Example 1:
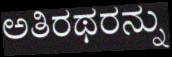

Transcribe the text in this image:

ಅತಿರಥರನ್ನು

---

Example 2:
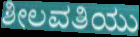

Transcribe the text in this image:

ಶೀಲವತಿಯು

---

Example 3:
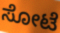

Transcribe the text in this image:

ಸೋಟೆ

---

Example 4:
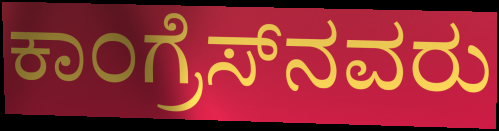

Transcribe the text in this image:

ಕಾಂಗ್ರೆಸ್‌ನವರು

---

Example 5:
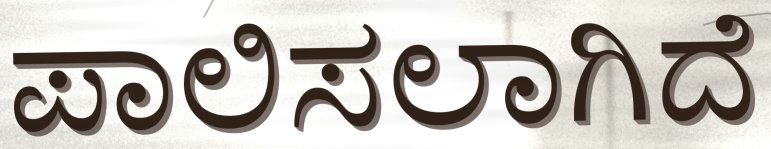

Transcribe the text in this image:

ಪಾಲಿಸಲಾಗಿದೆ